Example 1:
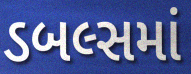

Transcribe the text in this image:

ડબલ્સમાં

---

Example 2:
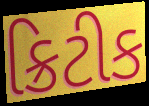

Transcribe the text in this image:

ક્રિટીક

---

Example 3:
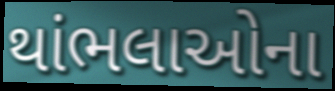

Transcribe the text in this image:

થાંભલાઓના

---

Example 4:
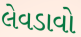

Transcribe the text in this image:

લેવડાવો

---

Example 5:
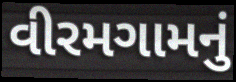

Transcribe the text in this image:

વીરમગામનું